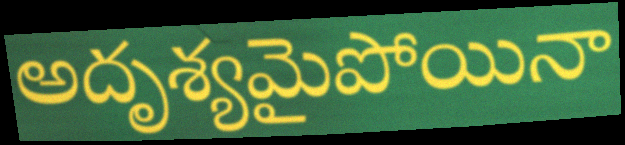
అదృశ్యమైపోయినా